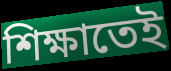
শিক্ষাতেই